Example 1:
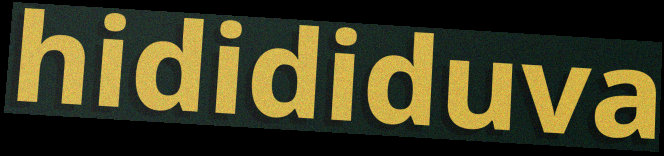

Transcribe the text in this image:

hidididuva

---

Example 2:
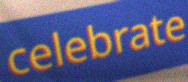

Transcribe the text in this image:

celebrate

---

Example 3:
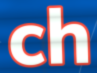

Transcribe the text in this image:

ch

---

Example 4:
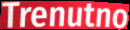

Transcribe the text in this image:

Trenutno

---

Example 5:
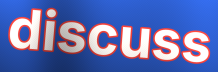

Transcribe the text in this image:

discuss